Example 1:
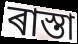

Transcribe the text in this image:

ৰাস্তা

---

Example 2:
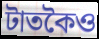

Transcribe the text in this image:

টাতকৈও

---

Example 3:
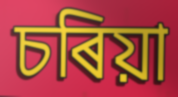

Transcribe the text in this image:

চৰিয়া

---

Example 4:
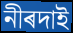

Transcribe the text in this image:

নীৰদাই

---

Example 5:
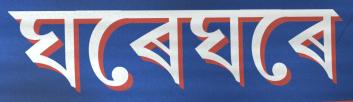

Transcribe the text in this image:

ঘৰেঘৰে